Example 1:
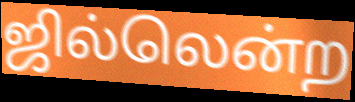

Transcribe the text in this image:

ஜில்லென்ற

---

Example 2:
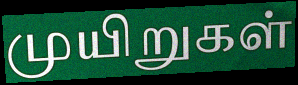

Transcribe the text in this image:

முயிறுகள்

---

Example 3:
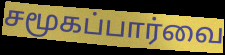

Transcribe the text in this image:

சமூகப்பார்வை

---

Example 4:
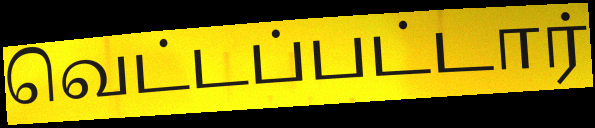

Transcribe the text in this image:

வெட்டப்பட்டார்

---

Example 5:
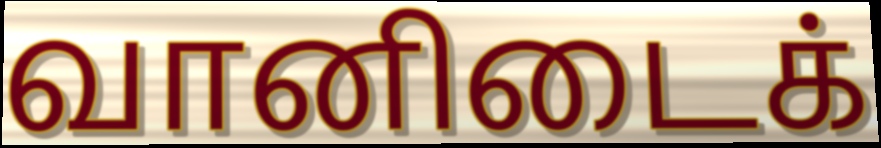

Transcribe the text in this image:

வானிடைக்